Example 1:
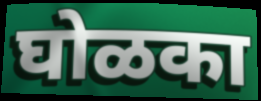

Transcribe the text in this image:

घोळका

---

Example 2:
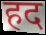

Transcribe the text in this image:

हद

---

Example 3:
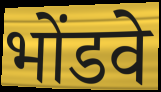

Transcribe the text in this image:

भोंडवे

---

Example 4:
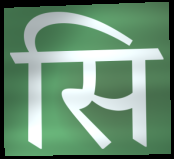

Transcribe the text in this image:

सि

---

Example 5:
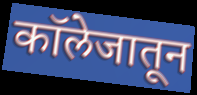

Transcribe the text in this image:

कॉलेजातून